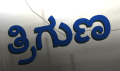
ತ್ರಿಗುಣ